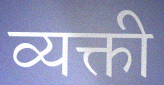
व्यक्ती